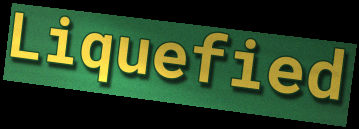
Liquefied